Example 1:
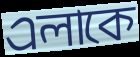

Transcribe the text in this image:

এলাকে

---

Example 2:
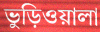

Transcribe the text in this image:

ভুড়িওয়ালা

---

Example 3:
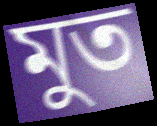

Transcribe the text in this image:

মুত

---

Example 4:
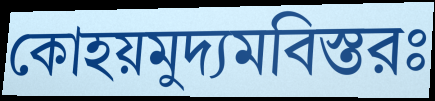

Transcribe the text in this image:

কোহয়মুদ্যমবিস্তরঃ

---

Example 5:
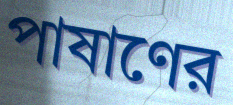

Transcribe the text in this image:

পাষাণের